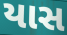
યાસ